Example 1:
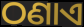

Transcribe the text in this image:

ଠଣାଏ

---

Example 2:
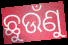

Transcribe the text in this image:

ଛୁଉଁଣୁ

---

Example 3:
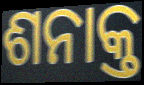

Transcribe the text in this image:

ଶନାକ୍ତ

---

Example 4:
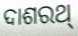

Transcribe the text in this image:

ଦାଶରଥ୍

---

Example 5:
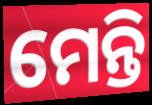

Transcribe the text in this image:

ମେନ୍ତି